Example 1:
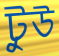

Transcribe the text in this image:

টুউ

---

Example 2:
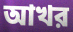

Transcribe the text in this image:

আখর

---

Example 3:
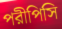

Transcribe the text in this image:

পরীপিসি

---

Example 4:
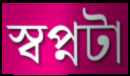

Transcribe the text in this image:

স্বপ্নটা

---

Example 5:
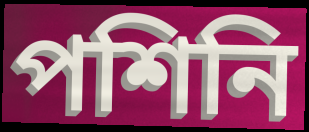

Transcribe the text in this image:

পশিনি